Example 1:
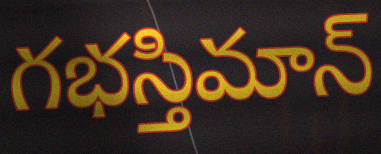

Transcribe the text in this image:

గభస్తిమాన్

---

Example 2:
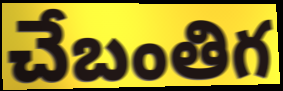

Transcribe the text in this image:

చేబంతిగ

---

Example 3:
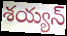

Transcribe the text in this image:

శయ్యన్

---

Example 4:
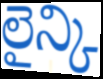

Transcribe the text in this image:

లైన్కి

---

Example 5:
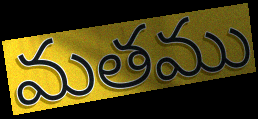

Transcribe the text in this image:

మతము